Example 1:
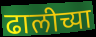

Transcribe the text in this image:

ढालीच्या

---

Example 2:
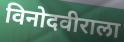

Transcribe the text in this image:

विनोदवीराला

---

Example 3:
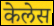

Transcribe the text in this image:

केलेस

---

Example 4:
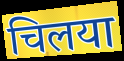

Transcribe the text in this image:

चिलया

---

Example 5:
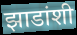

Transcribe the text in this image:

झाडांशी